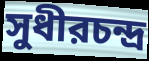
সুধীরচন্দ্র